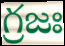
గ్రజః